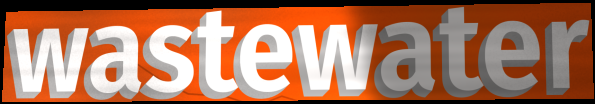
wastewater